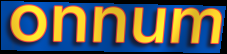
onnum